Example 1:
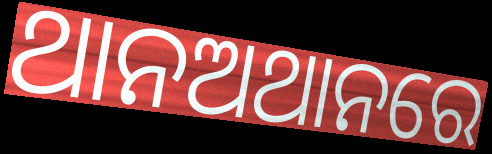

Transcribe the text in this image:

ଥାନଅଥାନରେ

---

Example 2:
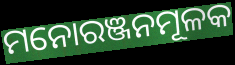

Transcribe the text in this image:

ମନୋରଞ୍ଜନମୂଳକ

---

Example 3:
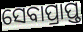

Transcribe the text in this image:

ସେବାପ୍ରାପ୍ତ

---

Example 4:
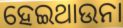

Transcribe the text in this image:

ହେଇଥାଉନା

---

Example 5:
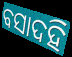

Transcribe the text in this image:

ବସାଦହି